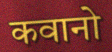
कवानो